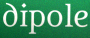
dipole